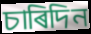
চাৰিদিন